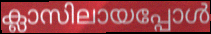
ക്ലാസിലായപ്പോൾ